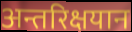
अन्तरिक्षयान